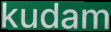
kudam